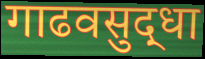
गाढवसुद्धा